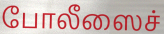
போலீஸைச்